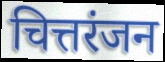
चित्तरंजन